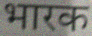
भारक